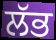
ਲੱਭ